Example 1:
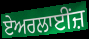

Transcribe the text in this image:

ਏਅਰਲਾਈਂਜ਼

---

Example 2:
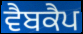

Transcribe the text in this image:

ਵੈਬਕੈਪ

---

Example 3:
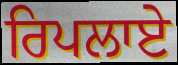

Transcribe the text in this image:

ਰਿਪਲਾਏ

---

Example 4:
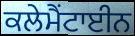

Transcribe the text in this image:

ਕਲੇਮੈਂਟਾਈਨ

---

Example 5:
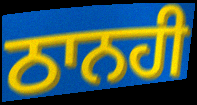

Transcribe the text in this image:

ਠਾਨਹੀ